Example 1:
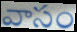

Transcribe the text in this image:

వాసం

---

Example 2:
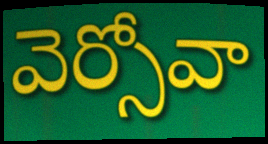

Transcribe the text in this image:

వెర్సోవా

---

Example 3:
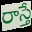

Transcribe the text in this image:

రాస్తే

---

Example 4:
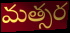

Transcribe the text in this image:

మత్సర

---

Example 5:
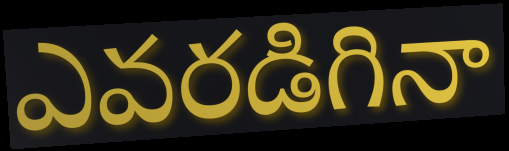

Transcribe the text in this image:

ఎవరడిగినా